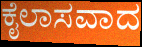
ಕೈಲಾಸವಾದ